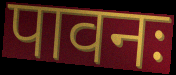
पावनः